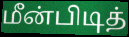
மீன்பிடித்